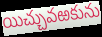
యిచ్చువఱకును